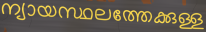
ന്യായസ്ഥലത്തേക്കുള്ള